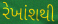
રેખાંશથી